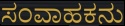
ಸಂವಾಹಕನು